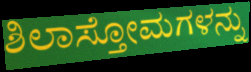
ಶಿಲಾಸ್ತೋಮಗಳನ್ನು